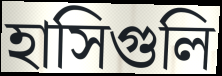
হাসিগুলি